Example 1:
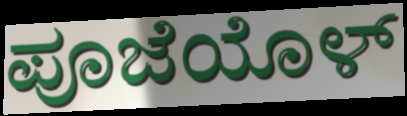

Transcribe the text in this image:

ಪೂಜೆಯೊಳ್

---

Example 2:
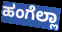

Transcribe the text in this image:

ಹಂಗೆಲ್ಲಾ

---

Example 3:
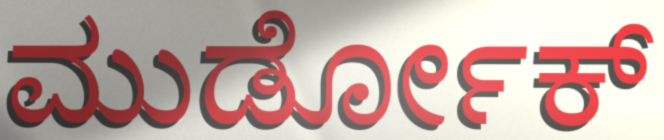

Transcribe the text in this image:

ಮುರ್ಡೋಕ್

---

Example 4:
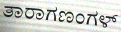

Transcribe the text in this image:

ತಾರಾಗಣಂಗಳ್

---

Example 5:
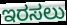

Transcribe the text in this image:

ಇರಸಲು